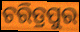
ଚରିତ୍ରପୁର